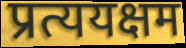
प्रत्ययक्षम